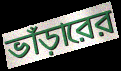
ভাঁড়ারের